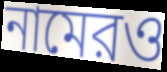
নামেরও